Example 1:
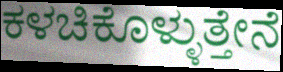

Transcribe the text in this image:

ಕಳಚಿಕೊಳ್ಳುತ್ತೇನೆ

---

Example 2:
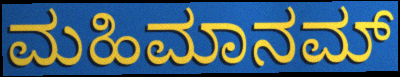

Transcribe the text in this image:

ಮಹಿಮಾನಮ್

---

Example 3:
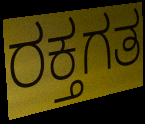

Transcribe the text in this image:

ರಕ್ತಗತ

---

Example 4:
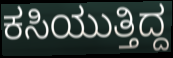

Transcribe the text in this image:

ಕಸಿಯುತ್ತಿದ್ದ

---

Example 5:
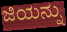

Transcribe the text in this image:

ಜಿಯನ್ನು